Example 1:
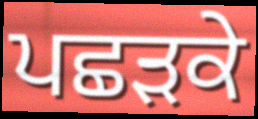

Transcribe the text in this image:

ਪਛੜਕੇ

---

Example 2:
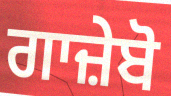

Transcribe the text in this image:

ਗਾਜ਼ੇਬੋ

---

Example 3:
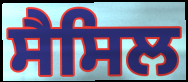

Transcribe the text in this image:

ਸੈਸਿਲ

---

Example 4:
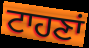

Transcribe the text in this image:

ਟਾਹਣਾਂ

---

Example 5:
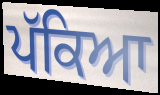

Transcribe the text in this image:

ਪੱਕਿਆ